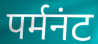
पर्मनंट